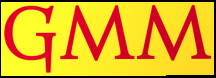
GMM